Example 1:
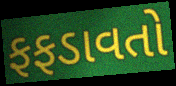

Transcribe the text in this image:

ફફડાવતો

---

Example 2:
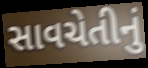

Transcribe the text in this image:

સાવચેતીનું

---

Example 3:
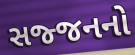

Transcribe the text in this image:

સજ્જનનો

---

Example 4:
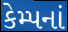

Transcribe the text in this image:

કેમ્પનાં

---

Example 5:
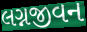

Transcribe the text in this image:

લગ્નજીવન